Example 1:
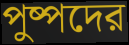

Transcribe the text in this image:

পুষ্পদের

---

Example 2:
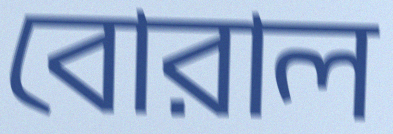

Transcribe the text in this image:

বোরাল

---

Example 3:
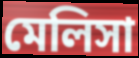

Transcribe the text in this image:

মেলিসা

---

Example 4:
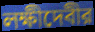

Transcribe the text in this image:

লক্ষীদেবীর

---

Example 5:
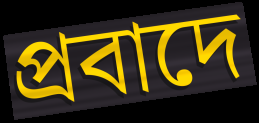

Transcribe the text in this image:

প্রবাদে